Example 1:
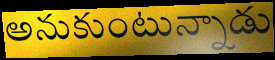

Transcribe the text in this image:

అనుకుంటున్నాడు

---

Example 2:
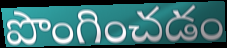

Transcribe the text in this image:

పొంగించడం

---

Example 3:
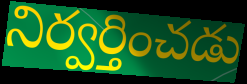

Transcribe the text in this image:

నిర్వర్తించడు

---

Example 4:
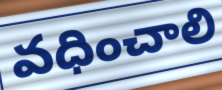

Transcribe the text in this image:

వధించాలి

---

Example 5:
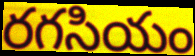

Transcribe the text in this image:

రగసియం